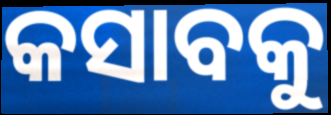
କସାବକୁ